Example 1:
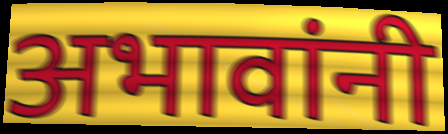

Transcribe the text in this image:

अभावांनी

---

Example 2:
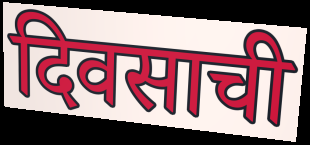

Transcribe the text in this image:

दिवसाची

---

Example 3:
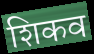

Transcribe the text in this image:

शिकव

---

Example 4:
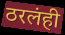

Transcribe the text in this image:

ठरलंही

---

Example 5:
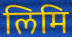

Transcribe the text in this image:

लिमि